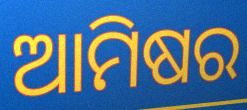
ଆମିଷର